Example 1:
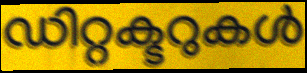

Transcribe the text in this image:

ഡിറ്റക്ടറുകൾ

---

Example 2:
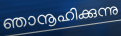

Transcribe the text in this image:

ഞാനൂഹിക്കുന്നു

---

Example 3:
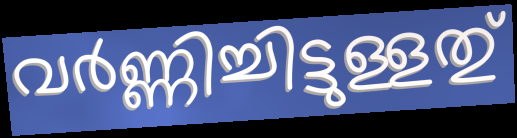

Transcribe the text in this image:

വർണ്ണിച്ചിട്ടുള്ളതു്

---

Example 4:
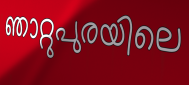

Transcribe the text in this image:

ഞാറ്റുപുരയിലെ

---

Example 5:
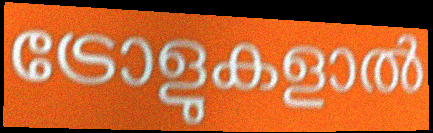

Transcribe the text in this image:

ട്രോളുകളാൽ